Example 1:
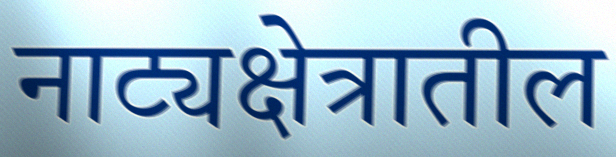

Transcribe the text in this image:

नाट्यक्षेत्रातील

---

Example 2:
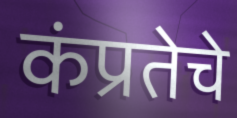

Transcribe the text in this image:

कंप्रतेचे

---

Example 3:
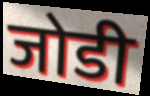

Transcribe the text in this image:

जोडी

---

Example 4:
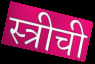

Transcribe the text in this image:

स्त्रीची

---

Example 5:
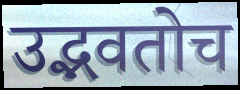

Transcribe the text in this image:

उद्भवतोच